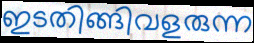
ഇടതിങ്ങിവളരുന്ന